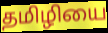
தமிழியை